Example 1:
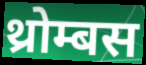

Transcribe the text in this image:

थ्रोम्बस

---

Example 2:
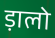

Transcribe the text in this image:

ड़ालो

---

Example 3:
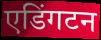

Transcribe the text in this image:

एडिंगटन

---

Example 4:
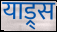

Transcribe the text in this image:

याड्र्स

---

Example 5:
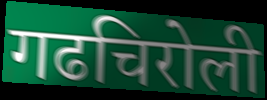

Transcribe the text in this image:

गढचिरोली